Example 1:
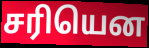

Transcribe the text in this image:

சரியென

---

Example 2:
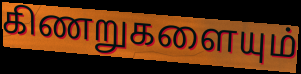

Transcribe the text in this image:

கிணறுகளையும்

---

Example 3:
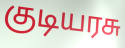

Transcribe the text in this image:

குடியரசு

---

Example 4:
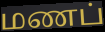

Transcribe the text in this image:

மணப்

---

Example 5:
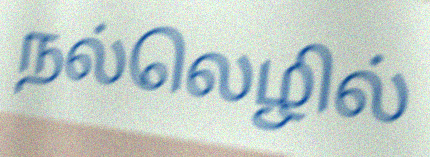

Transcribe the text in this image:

நல்லெழில்